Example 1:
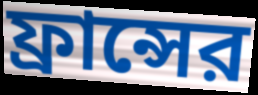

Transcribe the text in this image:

ফ্রান্সের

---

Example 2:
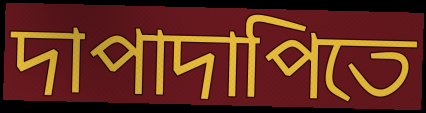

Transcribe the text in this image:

দাপাদাপিতে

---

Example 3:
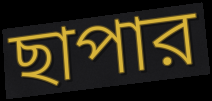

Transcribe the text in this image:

ছাপার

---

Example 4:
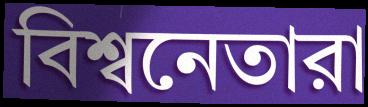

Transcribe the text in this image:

বিশ্বনেতারা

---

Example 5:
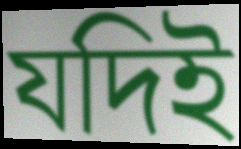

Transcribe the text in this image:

যদিই